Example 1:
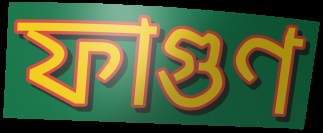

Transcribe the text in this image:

ফাগুণ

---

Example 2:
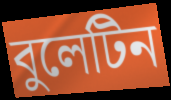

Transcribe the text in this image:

বুলেটিন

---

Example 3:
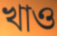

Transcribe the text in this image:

খাও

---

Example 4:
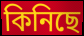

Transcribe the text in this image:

কিনিছে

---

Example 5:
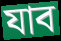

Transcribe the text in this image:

যাব